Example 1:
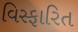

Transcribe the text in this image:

વિસ્ફારિત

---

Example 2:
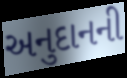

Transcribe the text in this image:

અનુદાનની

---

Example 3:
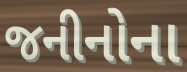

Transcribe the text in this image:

જનીનોના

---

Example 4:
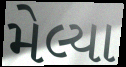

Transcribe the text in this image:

મેલ્યા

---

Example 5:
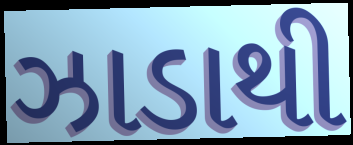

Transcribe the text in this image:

ઝાડાથી